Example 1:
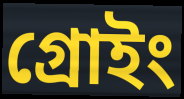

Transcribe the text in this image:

গ্রোইং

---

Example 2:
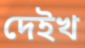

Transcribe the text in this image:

দেইখ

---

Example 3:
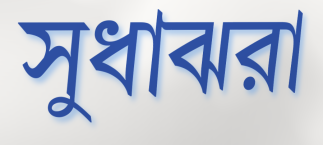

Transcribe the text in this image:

সুধাঝরা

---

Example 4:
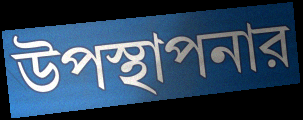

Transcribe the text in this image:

উপস্থাপনার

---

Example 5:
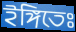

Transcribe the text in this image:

ইঙ্গিতেঃ